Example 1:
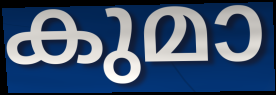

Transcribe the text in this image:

കുമാ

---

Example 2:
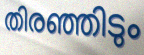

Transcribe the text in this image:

തിരഞ്ഞിടും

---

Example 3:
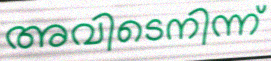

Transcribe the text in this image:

അവിടെനിന്ന്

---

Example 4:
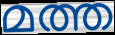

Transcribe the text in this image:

മത്ത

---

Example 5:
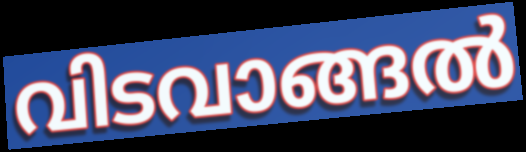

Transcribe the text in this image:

വിടവാങ്ങൽ